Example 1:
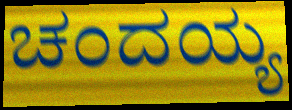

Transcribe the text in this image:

ಚಂದಯ್ಯ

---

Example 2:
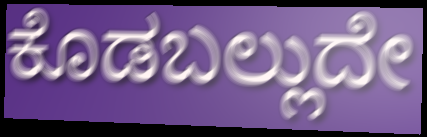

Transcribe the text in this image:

ಕೊಡಬಲ್ಲುದೇ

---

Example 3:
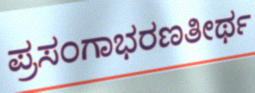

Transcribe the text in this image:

ಪ್ರಸಂಗಾಭರಣತೀರ್ಥ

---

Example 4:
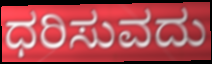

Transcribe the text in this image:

ಧರಿಸುವದು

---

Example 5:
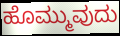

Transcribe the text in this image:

ಹೊಮ್ಮುವುದು